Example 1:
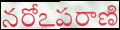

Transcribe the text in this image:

నరోఽపరాణి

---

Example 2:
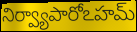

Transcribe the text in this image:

నిర్వ్యాపారోఽహమ్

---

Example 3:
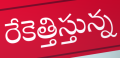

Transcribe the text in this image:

రేకెత్తిస్తున్న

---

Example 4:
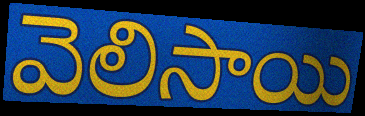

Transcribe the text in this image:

వెలిసాయి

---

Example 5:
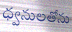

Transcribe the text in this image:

ధ్వనులతోను